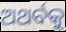
ଅଥର୍ବକୁ